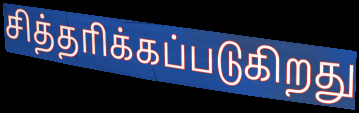
சித்தரிக்கப்படுகிறது